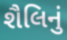
શૈલિનું